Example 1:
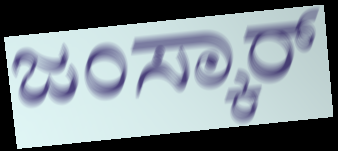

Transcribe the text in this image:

ಜಂಸ್ಕಾರ್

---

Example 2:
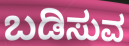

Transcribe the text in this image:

ಬಡಿಸುವ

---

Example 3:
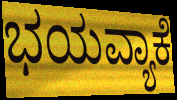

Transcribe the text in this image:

ಭಯವ್ಯಾಕೆ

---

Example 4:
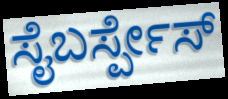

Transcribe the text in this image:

ಸೈಬರ್ಸ್ಪೇಸ್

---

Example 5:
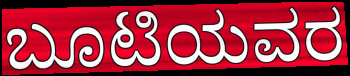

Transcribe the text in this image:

ಬೂಟಿಯವರ